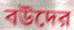
বউদের